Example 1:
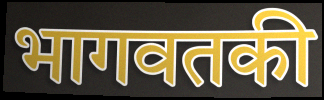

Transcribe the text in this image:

भागवतकी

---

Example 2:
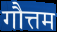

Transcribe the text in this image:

गौत्तम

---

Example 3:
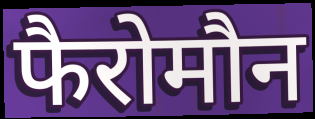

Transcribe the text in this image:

फैरोमौन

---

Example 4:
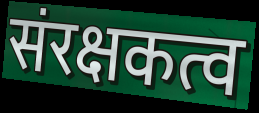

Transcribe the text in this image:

संरक्षकत्व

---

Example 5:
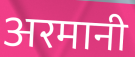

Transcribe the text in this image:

अरमानी